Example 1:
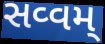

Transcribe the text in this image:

સવ્વમ્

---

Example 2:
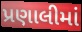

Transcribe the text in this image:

પ્રણાલીમાં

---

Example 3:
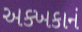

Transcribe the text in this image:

અક્ખકાનં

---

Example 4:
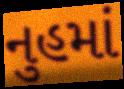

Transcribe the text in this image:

નુહમાં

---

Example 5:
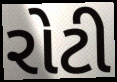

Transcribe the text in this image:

રોટી